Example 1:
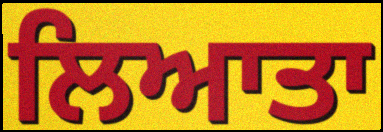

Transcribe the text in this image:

ਲਿਆਤਾ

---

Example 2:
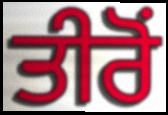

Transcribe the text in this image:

ਤੀਰੋਂ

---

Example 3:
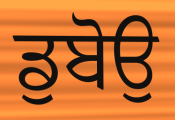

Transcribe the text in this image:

ਡੁਬੋਉ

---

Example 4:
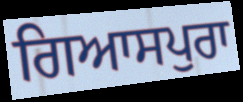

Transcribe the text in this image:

ਗਿਆਸਪੁਰਾ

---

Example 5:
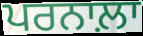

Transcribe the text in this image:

ਪਰਨਾਲ਼ਾ